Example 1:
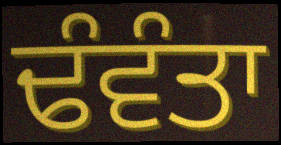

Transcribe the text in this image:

ਢੰਵੰਤਾ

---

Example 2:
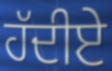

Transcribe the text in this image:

ਹੱਦੀਏ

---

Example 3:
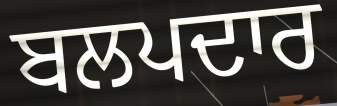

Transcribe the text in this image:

ਬਲਪਦਾਰ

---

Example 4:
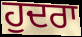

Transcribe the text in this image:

ਹੁਦਰਾ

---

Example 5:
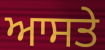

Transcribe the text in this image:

ਆਸਤੇ